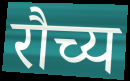
रौच्य